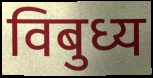
विबुध्य